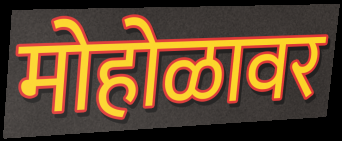
मोहोळावर